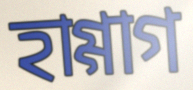
হাগ্গাগ